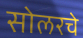
सोलरचे